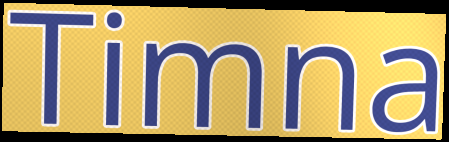
Timna